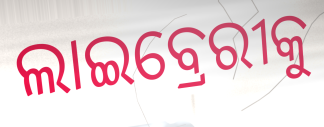
ଲାଇବ୍ରେରୀକୁ